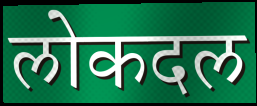
लोकदल